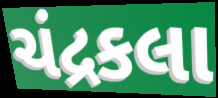
ચંદ્રકલા